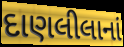
દાણલીલાનાં